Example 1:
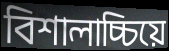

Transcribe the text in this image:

বিশালাচ্চিয়ে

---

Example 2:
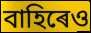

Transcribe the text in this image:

বাহিৰেও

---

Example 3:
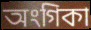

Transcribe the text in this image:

অংগিকা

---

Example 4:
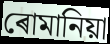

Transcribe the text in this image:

ৰোমানিয়া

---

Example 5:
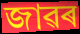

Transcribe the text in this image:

জাৱৰ